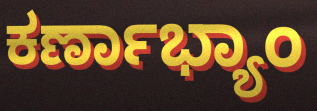
ಕರ್ಣಾಭ್ಯಾಂ